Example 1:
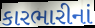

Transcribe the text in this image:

કારભારીનાં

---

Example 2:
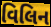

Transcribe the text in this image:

વિલિન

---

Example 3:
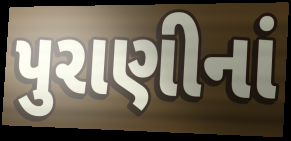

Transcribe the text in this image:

પુરાણીનાં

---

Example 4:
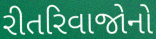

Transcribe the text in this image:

રીતરિવાજોનો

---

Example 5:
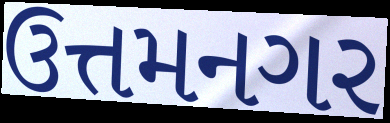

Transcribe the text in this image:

ઉત્તમનગર